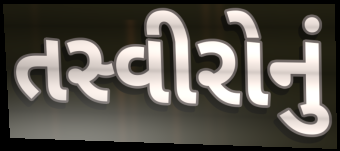
તસ્વીરોનું